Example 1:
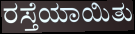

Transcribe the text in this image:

ರಸ್ತೆಯಾಯಿತು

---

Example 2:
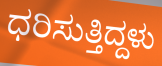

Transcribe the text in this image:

ಧರಿಸುತ್ತಿದ್ದಳು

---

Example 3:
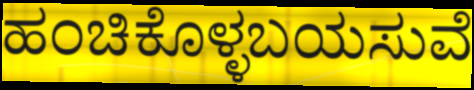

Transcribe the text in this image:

ಹಂಚಿಕೊಳ್ಳಬಯಸುವೆ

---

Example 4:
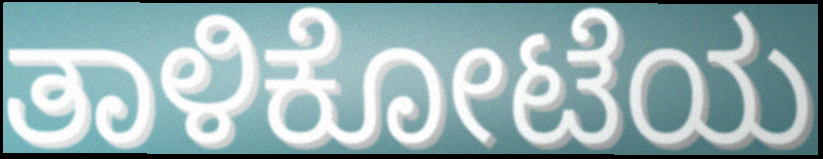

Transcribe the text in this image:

ತಾಳಿಕೋಟೆಯ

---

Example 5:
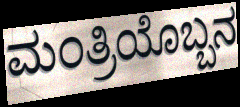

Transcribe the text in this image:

ಮಂತ್ರಿಯೊಬ್ಬನ